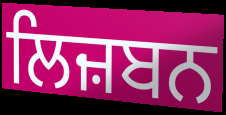
ਲਿਜ਼ਬਨ